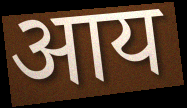
आय